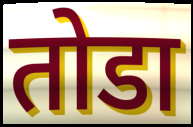
तोडा